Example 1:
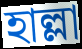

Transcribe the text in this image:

হাল্লা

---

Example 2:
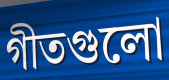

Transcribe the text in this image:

গীতগুলো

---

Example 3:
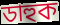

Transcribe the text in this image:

ডাহুক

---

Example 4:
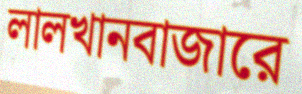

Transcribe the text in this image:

লালখানবাজারে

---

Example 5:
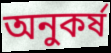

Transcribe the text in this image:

অনুকর্ষ